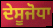
ਦੇਸੂਜੋਧਾ